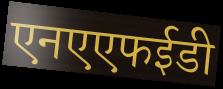
एनएएफईडी